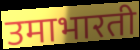
उमाभारती